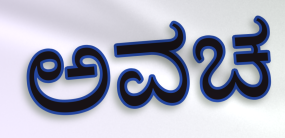
ಅವಚ